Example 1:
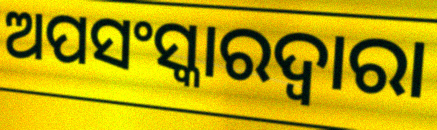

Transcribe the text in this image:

ଅପସଂସ୍କାରଦ୍ୱାରା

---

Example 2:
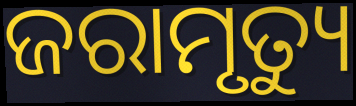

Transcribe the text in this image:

ଜରାମୃତ୍ୟୁ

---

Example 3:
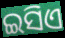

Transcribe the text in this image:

ଇସିଏ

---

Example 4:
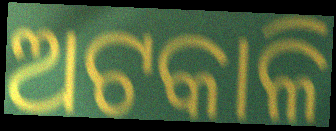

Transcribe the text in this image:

ଅଟକାଳି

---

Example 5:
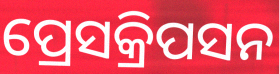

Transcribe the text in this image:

ପ୍ରେସକ୍ରିପସନ